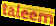
taleem